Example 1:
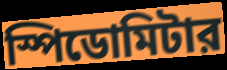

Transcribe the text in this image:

স্পিডোমিটার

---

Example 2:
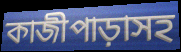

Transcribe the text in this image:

কাজীপাড়াসহ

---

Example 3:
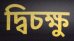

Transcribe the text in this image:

দ্বিচক্ষু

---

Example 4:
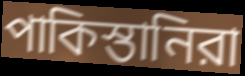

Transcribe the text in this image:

পাকিস্তানিরা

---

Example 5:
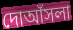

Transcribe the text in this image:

দোআঁসলা